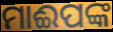
ମାଈପଙ୍କ